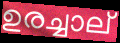
ഉരച്ചാല്